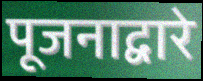
पूजनाद्वारे